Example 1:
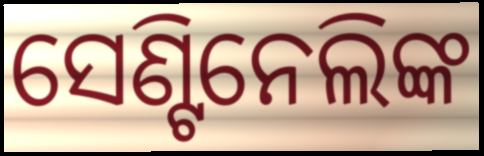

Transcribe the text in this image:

ସେଣ୍ଟିନେଲିଙ୍କ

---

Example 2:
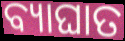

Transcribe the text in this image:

ବ୍ୟାଘାତ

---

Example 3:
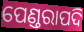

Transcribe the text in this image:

ପେଣ୍ଡରାପଦି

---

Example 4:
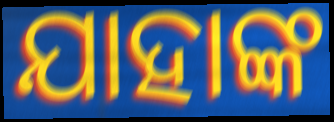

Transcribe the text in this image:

ଯାହାଙ୍କ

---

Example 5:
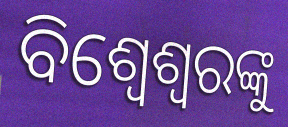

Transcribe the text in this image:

ବିଶ୍ୱେଶ୍ୱରଙ୍କୁ